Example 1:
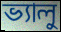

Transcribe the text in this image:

ভ্যালু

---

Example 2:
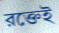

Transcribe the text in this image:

রক্তেই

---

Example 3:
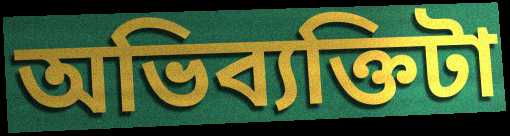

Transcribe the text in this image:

অভিব্যক্তিটা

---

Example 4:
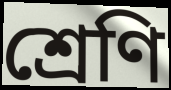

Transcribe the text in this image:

শ্রেণি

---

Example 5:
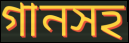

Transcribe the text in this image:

গানসহ